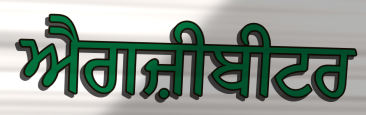
ਐਗਜ਼ੀਬੀਟਰ